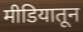
मीडियातून